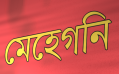
মেহেগনি